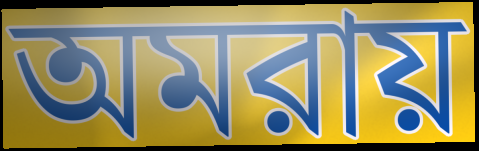
অমরায়